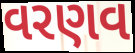
વરણવ